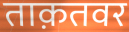
ताक़तवर